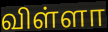
விள்ளா